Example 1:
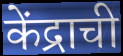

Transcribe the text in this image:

केंद्राची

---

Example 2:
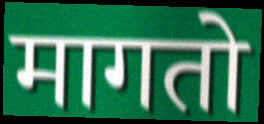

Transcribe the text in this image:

मागतो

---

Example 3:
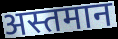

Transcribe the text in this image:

अस्तमान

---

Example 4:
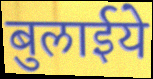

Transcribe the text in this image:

बुलाईये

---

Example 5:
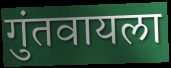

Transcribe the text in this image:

गुंतवायला